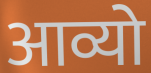
आव्यो